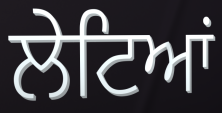
ਲੇਟਿਆਂ